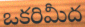
ఒకరిమీద